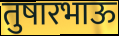
तुषारभाऊ